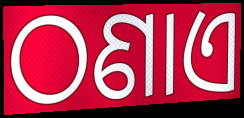
ଠଣାଏ